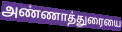
அண்ணாத்துரையை